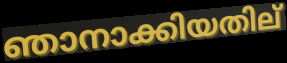
ഞാനാക്കിയതില്